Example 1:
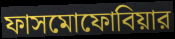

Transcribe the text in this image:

ফাসমোফোবিয়ার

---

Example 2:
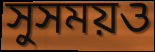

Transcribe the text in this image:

সুসময়ও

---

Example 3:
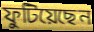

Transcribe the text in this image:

ফুটিয়েছেন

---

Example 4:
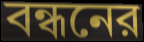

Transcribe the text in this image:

বন্ধনের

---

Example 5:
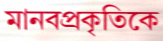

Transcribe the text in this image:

মানবপ্রকৃতিকে